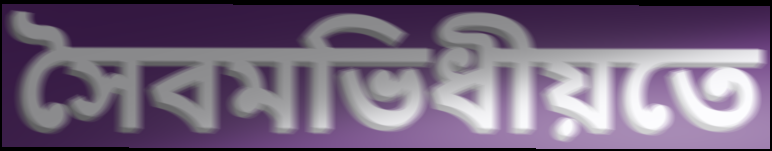
সৈবমভিধীয়তে